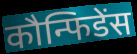
कौन्फिडेंस